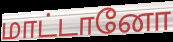
மாட்டானோ